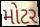
મોટર